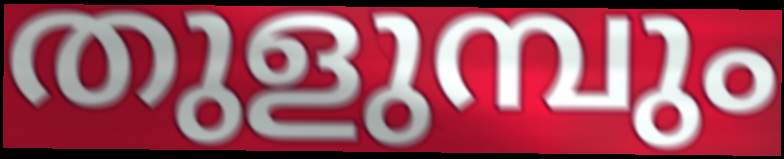
തുളുമ്പും